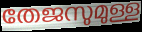
തേജസുമുള്ള